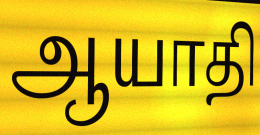
ஆயாதி